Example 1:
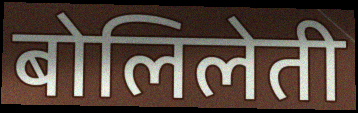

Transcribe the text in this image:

बोलिलेती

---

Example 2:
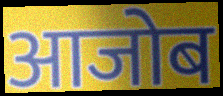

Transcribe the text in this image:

आजोब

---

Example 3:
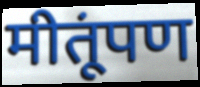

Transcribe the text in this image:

मीतूंपण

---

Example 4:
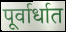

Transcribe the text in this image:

पूर्वार्धात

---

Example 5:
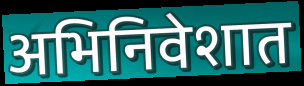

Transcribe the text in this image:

अभिनिवेशात